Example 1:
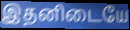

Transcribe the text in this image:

இதனிடையே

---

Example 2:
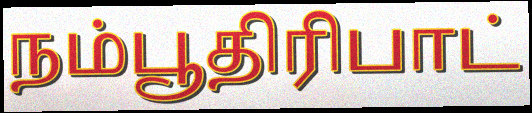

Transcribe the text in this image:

நம்பூதிரிபாட்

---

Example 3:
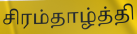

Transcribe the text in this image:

சிரம்தாழ்த்தி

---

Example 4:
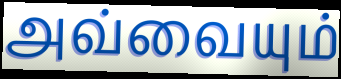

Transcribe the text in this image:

அவ்வையும்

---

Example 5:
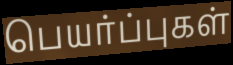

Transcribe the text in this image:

பெயர்ப்புகள்